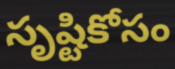
సృష్టికోసం